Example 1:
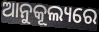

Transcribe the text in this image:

ଆନୁକୂଲ୍ୟରେ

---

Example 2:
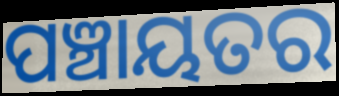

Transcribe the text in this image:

ପଞ୍ଚାୟତର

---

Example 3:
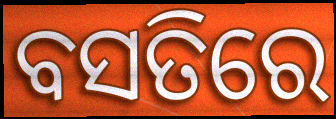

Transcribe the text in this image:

ବସତିରେ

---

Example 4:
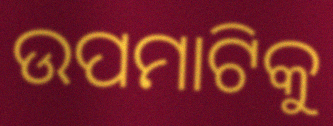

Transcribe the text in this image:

ଉପମାଟିକୁ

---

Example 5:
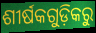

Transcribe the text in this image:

ଶୀର୍ଷକଗୁଡ଼ିକରୁ